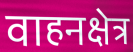
वाहनक्षेत्र